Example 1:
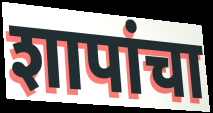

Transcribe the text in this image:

शापांचा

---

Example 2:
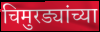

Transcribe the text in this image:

चिमुरड्यांच्या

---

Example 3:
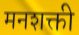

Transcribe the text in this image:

मनशक्ती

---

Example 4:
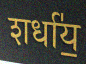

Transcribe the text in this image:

शर्धा॑य॒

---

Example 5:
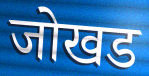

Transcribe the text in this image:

जोखड